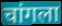
चांगला